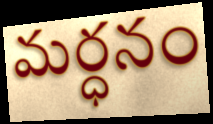
మర్ధనం